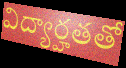
విద్యార్హతతో